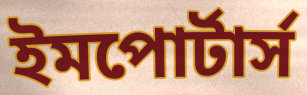
ইমপোর্টার্স